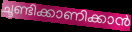
ചൂണ്ടിക്കാണിക്കാൻ